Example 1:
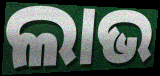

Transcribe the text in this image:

ଲାଭ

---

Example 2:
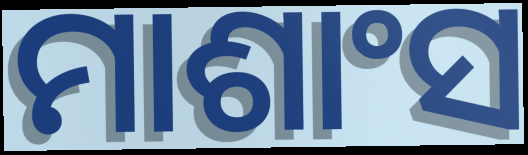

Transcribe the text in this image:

ମାଶାଂସ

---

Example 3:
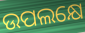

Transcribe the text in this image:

ଉପଲକ୍ଷେ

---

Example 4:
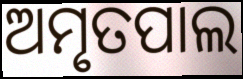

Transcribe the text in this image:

ଅମୃତପାଲ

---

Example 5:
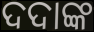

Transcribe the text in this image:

ଦଦାଙ୍କ